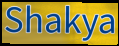
Shakya